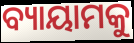
ବ୍ୟାୟାମକୁ